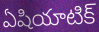
ఏషియాటిక్